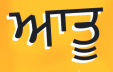
ਆਤੂ